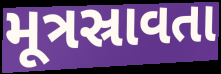
મૂત્રસ્રાવતા